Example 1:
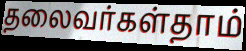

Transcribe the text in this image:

தலைவர்கள்தாம்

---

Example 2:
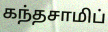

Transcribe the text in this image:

கந்தசாமிப்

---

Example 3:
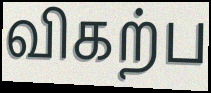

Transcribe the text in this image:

விகற்ப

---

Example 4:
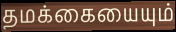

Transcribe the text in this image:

தமக்கையையும்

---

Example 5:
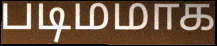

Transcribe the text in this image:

படிமமாக